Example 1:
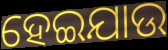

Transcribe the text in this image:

ହେଇଯାଉ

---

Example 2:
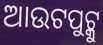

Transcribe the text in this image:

ଆଉଟପୁଟ୍କୁ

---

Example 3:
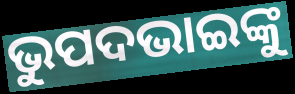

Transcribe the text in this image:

ଭୁପଦଭାଇଙ୍କୁ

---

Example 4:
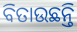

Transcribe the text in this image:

ବିତାଉଛନ୍ତି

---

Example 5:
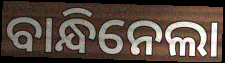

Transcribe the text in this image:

ବାନ୍ଧିନେଲା